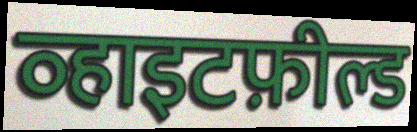
व्हाइटफ़ील्ड